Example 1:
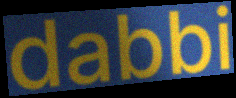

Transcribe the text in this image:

dabbi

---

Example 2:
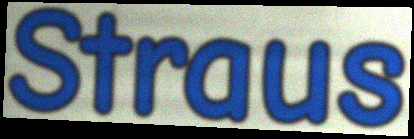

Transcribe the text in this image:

Straus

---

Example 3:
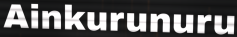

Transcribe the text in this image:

Ainkurunuru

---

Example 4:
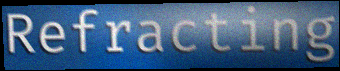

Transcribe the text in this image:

Refracting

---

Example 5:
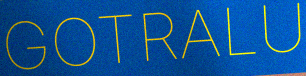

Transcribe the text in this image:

GOTRALU